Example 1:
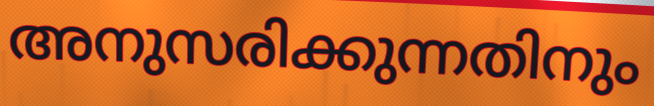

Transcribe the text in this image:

അനുസരിക്കുന്നതിനും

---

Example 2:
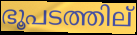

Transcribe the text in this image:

ഭൂപടത്തില്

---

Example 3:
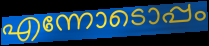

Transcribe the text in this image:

എന്നോടൊപ്പം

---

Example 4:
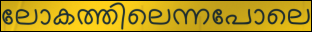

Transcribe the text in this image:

ലോകത്തിലെന്നപോലെ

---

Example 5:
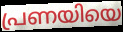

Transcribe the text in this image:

പ്രണയിയെ